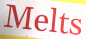
Melts